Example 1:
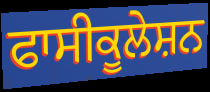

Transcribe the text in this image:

ਫਾਸੀਕੂਲੇਸ਼ਨ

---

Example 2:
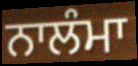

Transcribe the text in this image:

ਨਾਲੰਮਾ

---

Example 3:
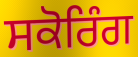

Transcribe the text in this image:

ਸਕੋਰਿੰਗ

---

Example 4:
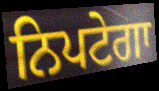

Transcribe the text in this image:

ਨਿਪਟੇਗਾ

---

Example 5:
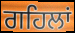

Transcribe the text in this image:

ਗਹਿਲਾਂ